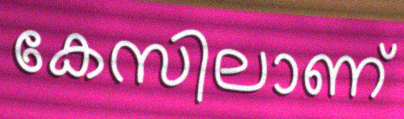
കേസിലാണ്